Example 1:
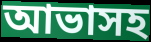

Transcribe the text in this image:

আভাসহ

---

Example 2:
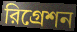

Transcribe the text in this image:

রিগ্রেশন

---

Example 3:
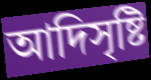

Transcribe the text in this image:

আদিসৃষ্টি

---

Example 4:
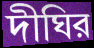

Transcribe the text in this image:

দীঘির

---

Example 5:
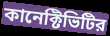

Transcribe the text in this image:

কানেক্টিভিটির